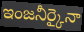
ఇంజనీర్కైనా